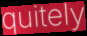
quitely